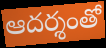
ఆదర్శంతో